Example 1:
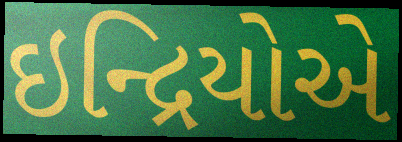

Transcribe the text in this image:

ઇન્દ્રિયોએ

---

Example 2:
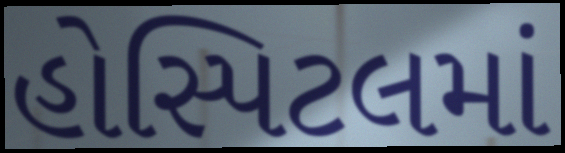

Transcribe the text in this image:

હોસ્પિટલમાં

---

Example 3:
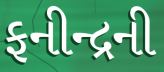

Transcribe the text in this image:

ફનીન્દ્રની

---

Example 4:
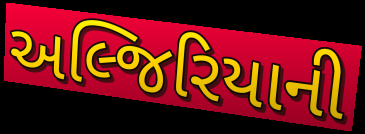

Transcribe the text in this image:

અલ્જિરિયાની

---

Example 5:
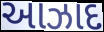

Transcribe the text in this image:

આઝાદ